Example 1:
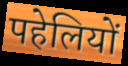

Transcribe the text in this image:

पहेलियों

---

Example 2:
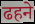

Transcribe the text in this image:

ढहने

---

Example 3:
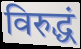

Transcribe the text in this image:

विरुद्धं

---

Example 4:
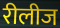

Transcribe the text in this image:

रीलीज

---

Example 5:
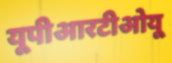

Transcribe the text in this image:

यूपीआरटीओयू